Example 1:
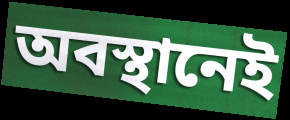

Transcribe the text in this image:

অবস্থানেই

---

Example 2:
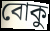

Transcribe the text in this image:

বোকু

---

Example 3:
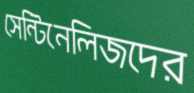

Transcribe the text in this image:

সেন্টিনেলিজদের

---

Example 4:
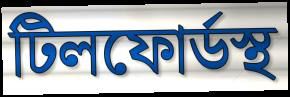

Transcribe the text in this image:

টিলফোর্ডস্থ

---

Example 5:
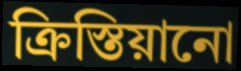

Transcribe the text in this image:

ক্রিস্তিয়ানো